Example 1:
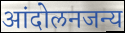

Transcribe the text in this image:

आंदोलनजन्य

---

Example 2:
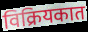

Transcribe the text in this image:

विक्रियकात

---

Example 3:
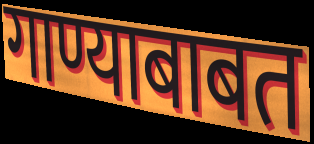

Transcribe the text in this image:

गाण्याबाबत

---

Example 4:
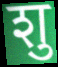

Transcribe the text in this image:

शु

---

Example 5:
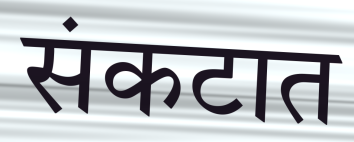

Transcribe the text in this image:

संकटात